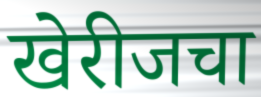
खेरीजचा